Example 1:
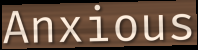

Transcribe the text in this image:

Anxious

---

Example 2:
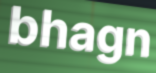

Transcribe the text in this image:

bhagn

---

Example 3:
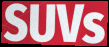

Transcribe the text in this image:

SUVs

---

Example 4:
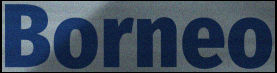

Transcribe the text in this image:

Borneo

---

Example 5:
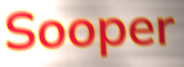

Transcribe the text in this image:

Sooper